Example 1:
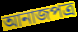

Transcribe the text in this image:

আনাজপত্র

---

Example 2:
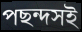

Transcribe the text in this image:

পছন্দসই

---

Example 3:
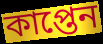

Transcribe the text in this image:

কাপ্তেন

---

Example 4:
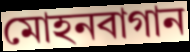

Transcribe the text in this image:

মোহনবাগান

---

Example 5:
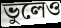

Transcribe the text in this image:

ভুলেও